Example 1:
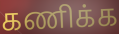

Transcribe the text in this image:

கணிக்க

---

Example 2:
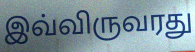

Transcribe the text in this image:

இவ்விருவரது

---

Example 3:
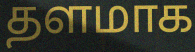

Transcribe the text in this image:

தளமாக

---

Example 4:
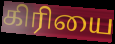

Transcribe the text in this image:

கிரியை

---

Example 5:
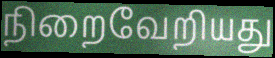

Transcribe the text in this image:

நிறைவேறியது